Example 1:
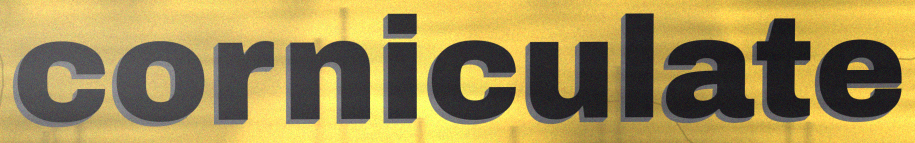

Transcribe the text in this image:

corniculate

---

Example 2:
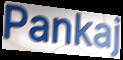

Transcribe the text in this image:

Pankaj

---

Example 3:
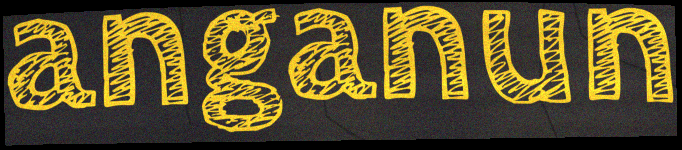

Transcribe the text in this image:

anganun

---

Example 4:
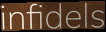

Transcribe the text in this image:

infidels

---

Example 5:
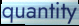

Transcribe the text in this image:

quantity